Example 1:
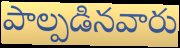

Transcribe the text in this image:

పాల్పడినవారు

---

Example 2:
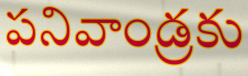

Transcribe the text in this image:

పనివాండ్రకు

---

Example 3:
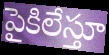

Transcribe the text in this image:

పైకిలేస్తూ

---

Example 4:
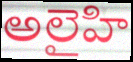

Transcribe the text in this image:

అలైహి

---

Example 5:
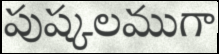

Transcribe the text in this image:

పుష్కలముగా